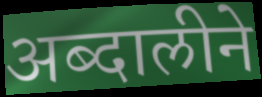
अब्दालीने